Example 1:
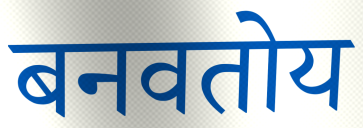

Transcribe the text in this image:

बनवतोय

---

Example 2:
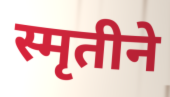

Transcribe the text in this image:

स्मृतीने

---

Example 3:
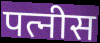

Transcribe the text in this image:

पत्‍नीस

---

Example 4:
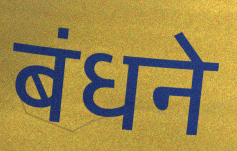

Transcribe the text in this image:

बंधने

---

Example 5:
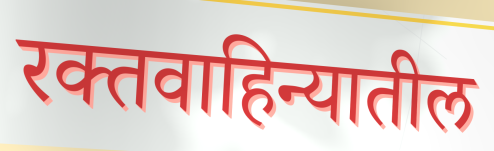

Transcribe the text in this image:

रक्तवाहिन्यातील